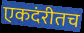
एकदंरीतच